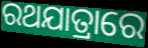
ରଥଯାତ୍ରାରେ